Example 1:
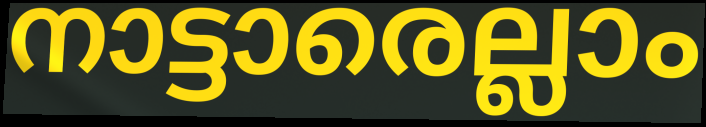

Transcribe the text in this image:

നാട്ടാരെല്ലാം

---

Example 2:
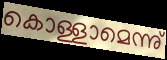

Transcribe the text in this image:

കൊള്ളാമെന്നു്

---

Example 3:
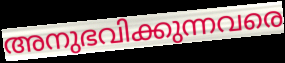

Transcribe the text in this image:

അനുഭവിക്കുന്നവരെ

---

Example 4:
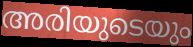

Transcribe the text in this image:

അരിയുടെയും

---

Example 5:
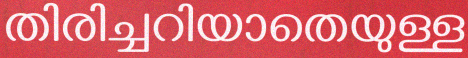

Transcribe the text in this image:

തിരിച്ചറിയാതെയുള്ള